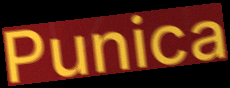
Punica